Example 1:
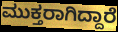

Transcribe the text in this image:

ಮುಕ್ತರಾಗಿದ್ದಾರೆ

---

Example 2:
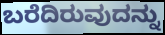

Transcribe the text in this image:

ಬರೆದಿರುವುದನ್ನು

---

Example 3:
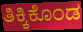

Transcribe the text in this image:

ತಿಕ್ಕಿಕೊಂಡ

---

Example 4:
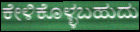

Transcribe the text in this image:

ಕೇಳಿಕೊಳ್ಳಬಹುದು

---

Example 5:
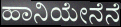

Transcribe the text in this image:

ಹಾನಿಯೇನೆನೆ